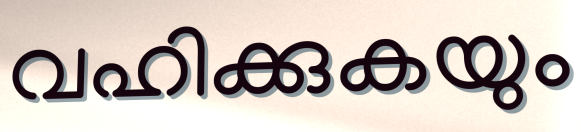
വഹിക്കുകയും